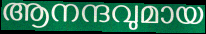
ആനന്ദവുമായ